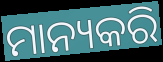
ମାନ୍ୟକରି